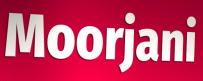
Moorjani